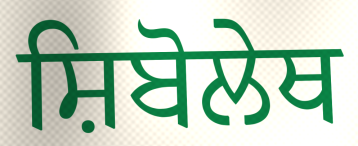
ਸ਼ਿਬੋਲੇਥ